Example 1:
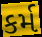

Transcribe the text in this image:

કર્મ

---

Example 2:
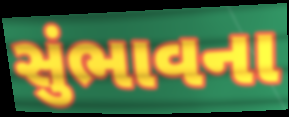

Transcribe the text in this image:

સુંભાવના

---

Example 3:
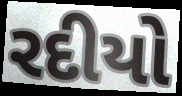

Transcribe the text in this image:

રદીયો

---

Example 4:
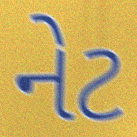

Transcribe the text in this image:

નેટ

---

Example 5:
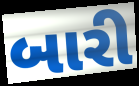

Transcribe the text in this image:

બારી